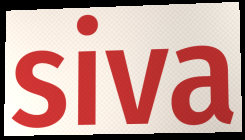
siva